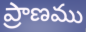
ప్రాణము